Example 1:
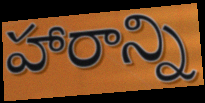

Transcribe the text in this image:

హారాన్ని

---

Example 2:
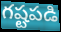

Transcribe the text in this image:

గష్టపడి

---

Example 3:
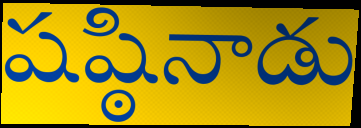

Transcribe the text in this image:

షష్ఠినాడు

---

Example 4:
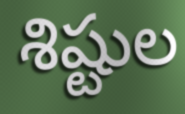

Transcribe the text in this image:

శిష్టుల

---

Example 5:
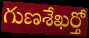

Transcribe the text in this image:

గుణశేఖర్తో